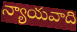
న్యాయవాది